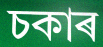
চকাৰ